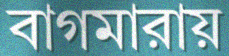
বাগমারায়